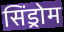
सिंड्रोम